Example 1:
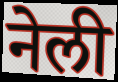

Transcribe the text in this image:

नेली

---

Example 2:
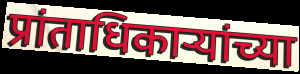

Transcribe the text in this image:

प्रांताधिकाऱ्यांच्या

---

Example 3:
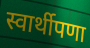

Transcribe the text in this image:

स्वार्थीपणा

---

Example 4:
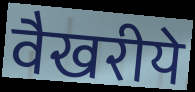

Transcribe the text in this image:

वैखरीये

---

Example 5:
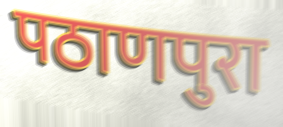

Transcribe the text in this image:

पठाणपुरा